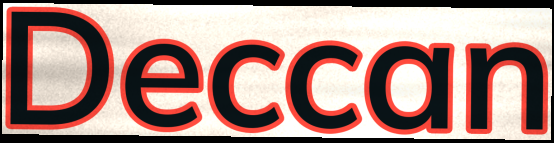
Deccan